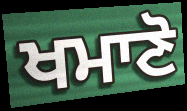
ਖਮਾਣੋ